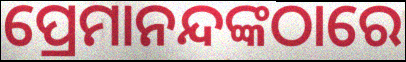
ପ୍ରେମାନନ୍ଦଙ୍କଠାରେ